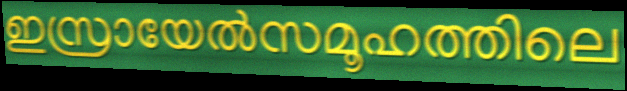
ഇസ്രായേൽസമൂഹത്തിലെ